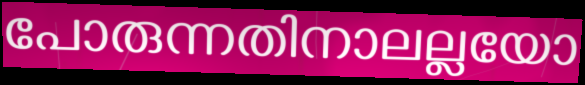
പോരുന്നതിനാലല്ലയോ